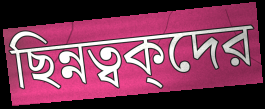
ছিন্নত্বক্দের